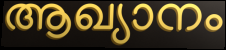
ആഖ്യാനം